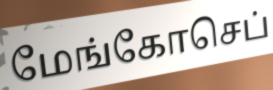
மேங்கோசெப்